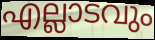
എല്ലാടവും